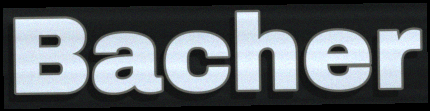
Bacher